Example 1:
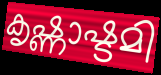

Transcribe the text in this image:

കൃഷ്ണാഷ്ടമി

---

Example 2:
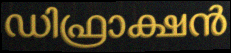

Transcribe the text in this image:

ഡിഫ്രാക്ഷൻ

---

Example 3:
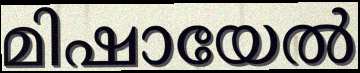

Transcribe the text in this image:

മിഷായേൽ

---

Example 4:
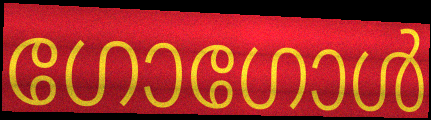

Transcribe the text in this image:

ഗോഗോൾ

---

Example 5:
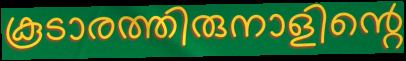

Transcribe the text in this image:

കൂടാരത്തിരുനാളിന്റെ